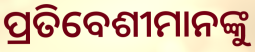
ପ୍ରତିବେଶୀମାନଙ୍କୁ